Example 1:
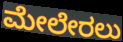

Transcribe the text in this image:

ಮೇಲೇರಲು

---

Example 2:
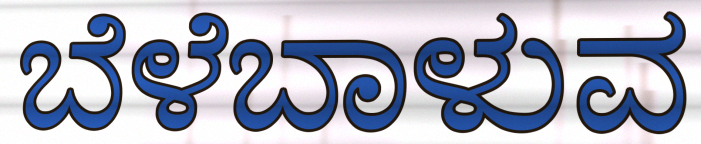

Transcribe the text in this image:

ಬೆಳೆಬಾಳುವ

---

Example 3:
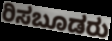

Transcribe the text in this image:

ರಿಸಬೂಡರು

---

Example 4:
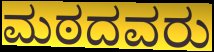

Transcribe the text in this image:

ಮಠದವರು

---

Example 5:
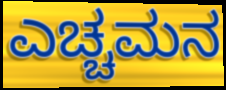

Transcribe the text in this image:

ಎಚ್ಚಮನ